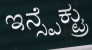
ಇನ್ಸ್ಪೆಕ್ಟ್ರು